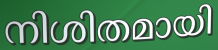
നിശിതമായി